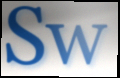
Sw